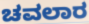
ಚವಲಾರ